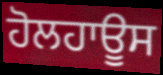
ਹੋਲਹਾਊਸ